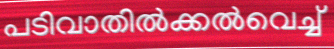
പടിവാതിൽക്കൽവെച്ച്